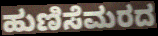
ಹುಣಿಸೆಮರದ